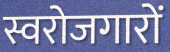
स्वरोजगारों